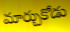
మార్చుకోడు